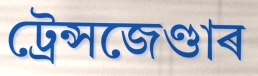
ট্ৰেন্সজেণ্ডাৰ